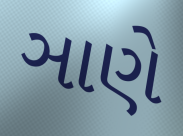
ઞાણે